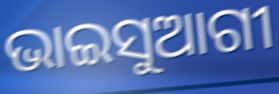
ଭାଇସୁଆଗୀ